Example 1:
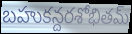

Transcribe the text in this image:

బహుకన్దరశోభితమ్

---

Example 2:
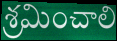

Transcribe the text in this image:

శ్రమించాలి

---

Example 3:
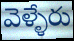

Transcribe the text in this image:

వెళ్ళేరు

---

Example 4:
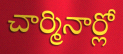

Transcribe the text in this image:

చార్మినార్లో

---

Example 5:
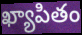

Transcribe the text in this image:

ఖ్యాపితం